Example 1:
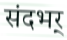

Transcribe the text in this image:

संदभर्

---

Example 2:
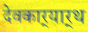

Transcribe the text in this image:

देवकार्यार्थ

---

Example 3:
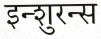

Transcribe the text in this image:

इन्शुरन्स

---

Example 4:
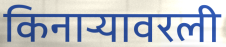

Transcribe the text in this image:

किनाऱ्यावरली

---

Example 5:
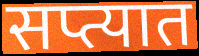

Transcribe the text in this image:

सप्त्यात